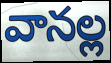
వానల్ల